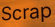
Scrap